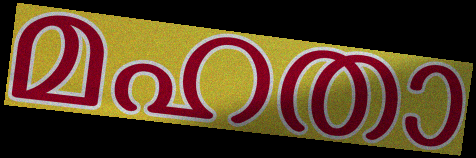
മഹതാ